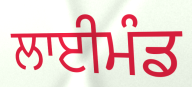
ਲਾਈਮੰਡ